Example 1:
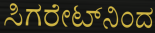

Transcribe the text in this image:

ಸಿಗರೇಟ್‌ನಿಂದ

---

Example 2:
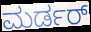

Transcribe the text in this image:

ಮರ್ಡರ್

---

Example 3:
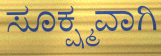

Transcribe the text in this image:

ಸೂಕ್ಷ್ಮವಾಗಿ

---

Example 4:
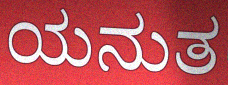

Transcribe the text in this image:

ಯನುತ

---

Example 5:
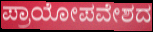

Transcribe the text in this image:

ಪ್ರಾಯೋಪವೇಶದ